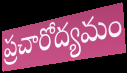
ప్రచారోద్యమం